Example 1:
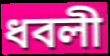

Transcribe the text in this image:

ধবলী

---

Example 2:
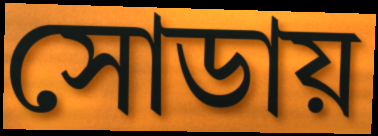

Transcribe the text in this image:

সোডায়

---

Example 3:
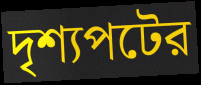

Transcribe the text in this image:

দৃশ্যপটের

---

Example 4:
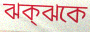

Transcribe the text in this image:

ঝক্‌ঝকে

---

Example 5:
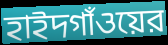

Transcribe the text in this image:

হাইদগাঁওয়ের